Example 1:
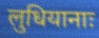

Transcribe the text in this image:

लुधियानाः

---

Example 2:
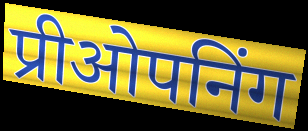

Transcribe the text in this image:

प्रीओपनिंग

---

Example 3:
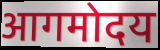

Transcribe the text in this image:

आगमोदय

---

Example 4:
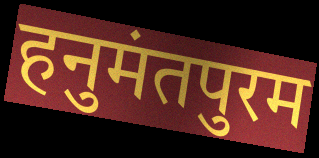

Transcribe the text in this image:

हनुमंतपुरम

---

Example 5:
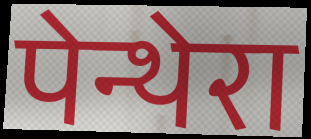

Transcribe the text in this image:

पेन्थेरा